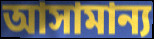
আসামান্য